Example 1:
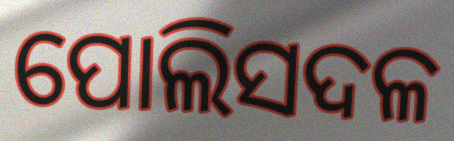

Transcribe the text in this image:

ପୋଲିସଦଳ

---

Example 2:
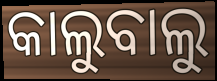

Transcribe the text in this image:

କାଲୁବାଲୁ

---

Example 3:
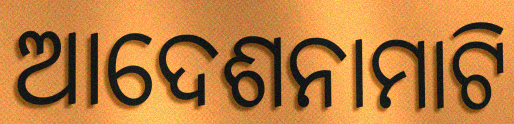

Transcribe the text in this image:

ଆଦେଶନାମାଟି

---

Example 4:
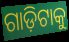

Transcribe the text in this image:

ଗାଡ଼ିଟାକୁ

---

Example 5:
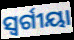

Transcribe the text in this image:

ସ୍ବର୍ଗୀୟା